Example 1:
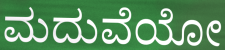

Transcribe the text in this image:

ಮದುವೆಯೋ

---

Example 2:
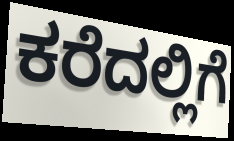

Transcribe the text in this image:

ಕರೆದಲ್ಲಿಗೆ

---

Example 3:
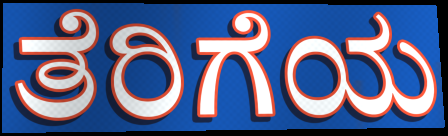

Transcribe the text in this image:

ತೆರಿಗೆಯ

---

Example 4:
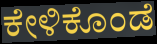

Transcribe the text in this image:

ಕೇಳಿಕೊಂಡೆ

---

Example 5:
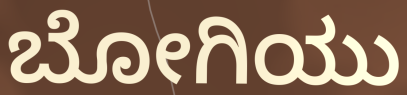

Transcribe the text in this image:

ಬೋಗಿಯು